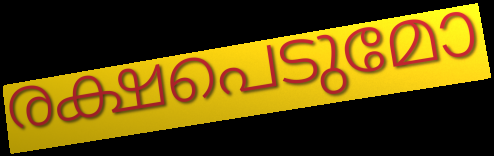
രക്ഷപെടുമോ